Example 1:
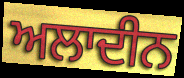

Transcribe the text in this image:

ਅਲਾਦੀਨ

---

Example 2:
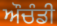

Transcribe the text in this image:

ਔਚੰਡੀ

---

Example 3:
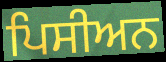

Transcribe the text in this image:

ਪਿਸੀਅਨ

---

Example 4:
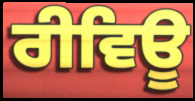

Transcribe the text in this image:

ਰੀਵਿਊ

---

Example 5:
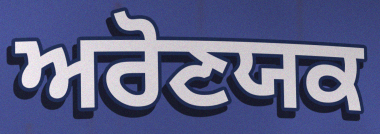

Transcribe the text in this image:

ਅਰੋਣਯਕ